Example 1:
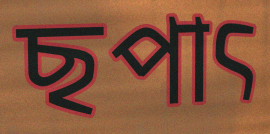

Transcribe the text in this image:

ছপাৎ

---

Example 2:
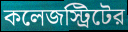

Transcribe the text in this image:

কলেজস্ট্রিটের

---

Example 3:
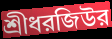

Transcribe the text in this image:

শ্রীধরজিউর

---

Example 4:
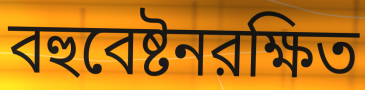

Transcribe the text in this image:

বহুবেষ্টনরক্ষিত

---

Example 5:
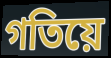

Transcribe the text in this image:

গতিয়ে